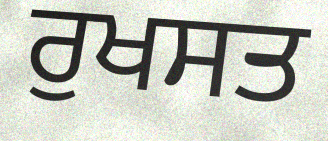
ਰੁਖਸਤ